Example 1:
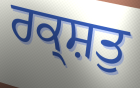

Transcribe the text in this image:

ਰਕ੍ਸ਼ਤੁ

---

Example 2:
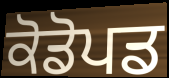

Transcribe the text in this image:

ਕੋਡੋਪਡ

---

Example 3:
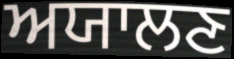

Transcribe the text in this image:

ਅਯਾਲਣ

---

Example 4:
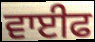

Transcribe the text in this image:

ਵਾਈਫ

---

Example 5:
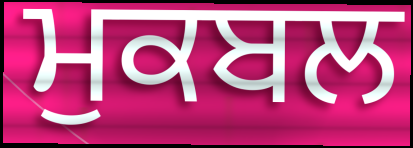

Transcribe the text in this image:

ਮੁਕਬਲ